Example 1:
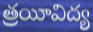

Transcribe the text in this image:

త్రయీవిద్య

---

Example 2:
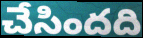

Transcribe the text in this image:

చేసిందది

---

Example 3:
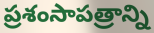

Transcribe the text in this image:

ప్రశంసాపత్రాన్ని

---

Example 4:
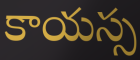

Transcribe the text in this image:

కాయస్స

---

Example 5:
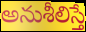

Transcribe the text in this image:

అనుశీలిస్తే